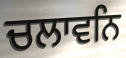
ਚਲਾਵਨਿ